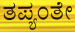
ತಪ್ಯಂತೇ